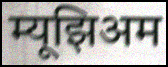
म्यूझिअम